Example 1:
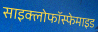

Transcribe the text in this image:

साइक्लोफॉस्फेमाइड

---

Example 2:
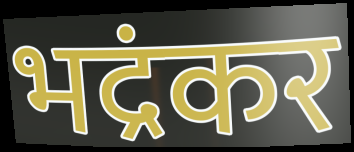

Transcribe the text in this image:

भद्रंकर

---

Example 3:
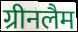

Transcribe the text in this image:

ग्रीनलैम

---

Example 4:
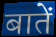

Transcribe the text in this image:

बातें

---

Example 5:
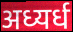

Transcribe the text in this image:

अध्यर्ध